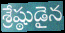
శ్రేష్ఠుడైన